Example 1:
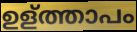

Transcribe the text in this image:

ഉള്ത്താപം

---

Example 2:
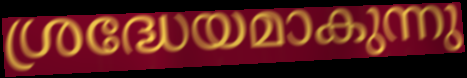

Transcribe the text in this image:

ശ്രദ്ധേയമാകുന്നു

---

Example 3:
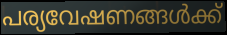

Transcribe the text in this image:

പര്യവേഷണങ്ങൾക്ക്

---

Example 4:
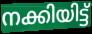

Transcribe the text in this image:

നക്കിയിട്ട്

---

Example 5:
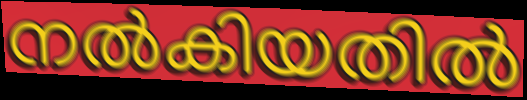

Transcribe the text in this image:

നൽകിയതിൽ